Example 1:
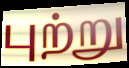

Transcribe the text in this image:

புற்று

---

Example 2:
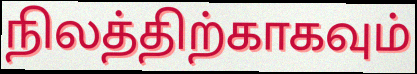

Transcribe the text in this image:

நிலத்திற்காகவும்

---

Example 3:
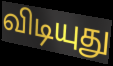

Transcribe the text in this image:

விடியுது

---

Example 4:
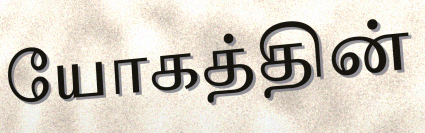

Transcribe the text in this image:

யோகத்தின்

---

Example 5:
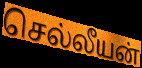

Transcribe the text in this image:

செல்லீயன்